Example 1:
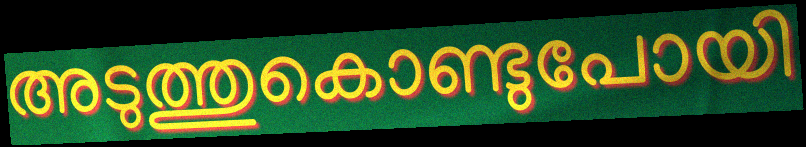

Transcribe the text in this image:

അടുത്തുകൊണ്ടുപോയി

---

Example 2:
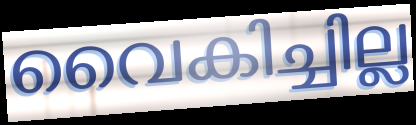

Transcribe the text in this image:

വൈകിച്ചില്ല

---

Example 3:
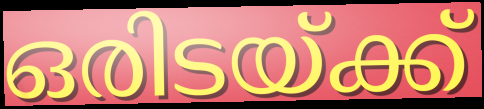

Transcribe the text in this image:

ഒരിടയ്ക്ക്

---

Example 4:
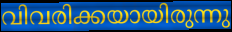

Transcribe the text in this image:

വിവരിക്കയായിരുന്നു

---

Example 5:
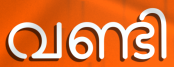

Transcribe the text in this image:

വണ്ടി